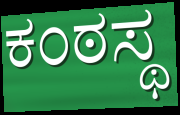
ಕಂಠಸ್ಥ